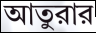
আতুরার